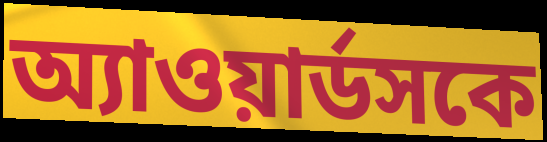
অ্যাওয়ার্ডসকে